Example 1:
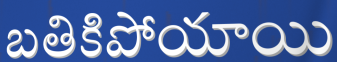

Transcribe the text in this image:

బతికిపోయాయి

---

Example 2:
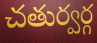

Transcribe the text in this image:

చతుర్వర్గ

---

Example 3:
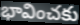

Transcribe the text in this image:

భావించకు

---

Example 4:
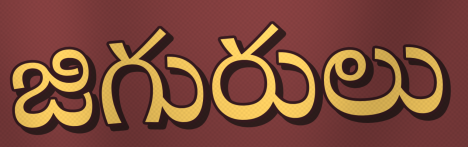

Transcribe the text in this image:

జిగురులు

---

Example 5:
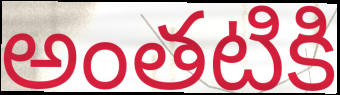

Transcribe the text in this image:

అంతటికి